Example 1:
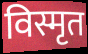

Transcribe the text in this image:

विस्मृत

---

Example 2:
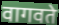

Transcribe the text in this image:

वागवते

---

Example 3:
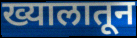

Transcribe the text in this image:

ख्यालातून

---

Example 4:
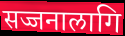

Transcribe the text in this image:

सज्जनालागि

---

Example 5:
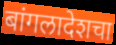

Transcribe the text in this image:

बांगलादेशचा